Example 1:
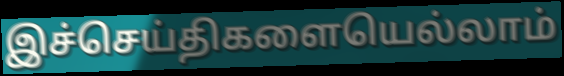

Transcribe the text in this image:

இச்செய்திகளையெல்லாம்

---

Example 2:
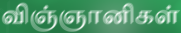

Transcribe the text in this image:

விஞ்ஞானிகள்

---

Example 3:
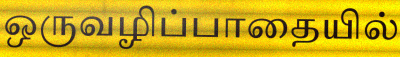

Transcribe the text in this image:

ஒருவழிப்பாதையில்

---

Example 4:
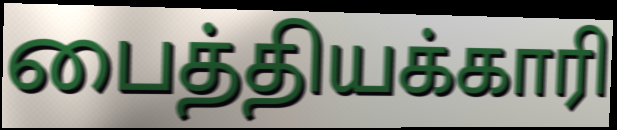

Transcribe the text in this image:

பைத்தியக்காரி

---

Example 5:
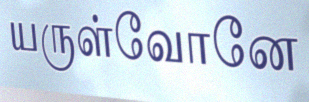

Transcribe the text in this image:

யருள்வோனே